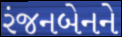
રંજનબેનને